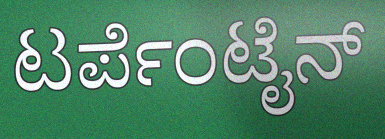
ಟರ್ಪೆಂಟೈನ್